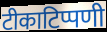
टीकाटिप्पणी